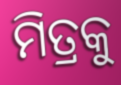
ମିତ୍ରକୁ